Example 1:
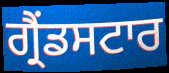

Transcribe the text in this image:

ਗ੍ਰੈਂਡਸਟਾਰ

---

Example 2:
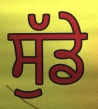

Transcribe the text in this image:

ਸੁੱਡੇ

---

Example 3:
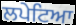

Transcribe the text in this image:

ਲਪੇਟਿਆ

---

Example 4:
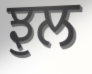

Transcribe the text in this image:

ਝੁਲ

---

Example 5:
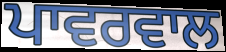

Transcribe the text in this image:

ਪਾਵਰਵਾਲ